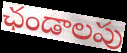
ఛండాలపు